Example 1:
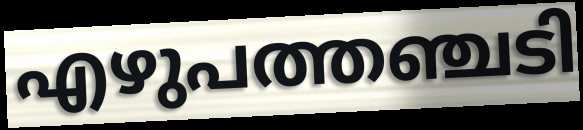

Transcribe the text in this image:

എഴുപത്തഞ്ചടി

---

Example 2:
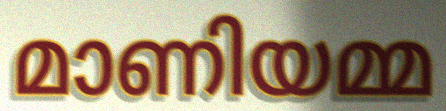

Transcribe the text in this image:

മാണിയമ്മ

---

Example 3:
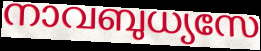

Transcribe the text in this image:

നാവബുധ്യസേ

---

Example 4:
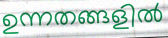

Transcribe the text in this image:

ഉന്നതങ്ങളിൽ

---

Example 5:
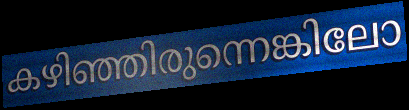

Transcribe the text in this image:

കഴിഞ്ഞിരുന്നെങ്കിലോ